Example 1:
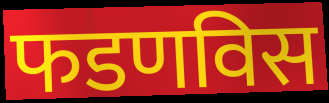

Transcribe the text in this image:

फडणविस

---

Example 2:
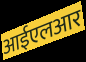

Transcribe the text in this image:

आईएलआर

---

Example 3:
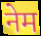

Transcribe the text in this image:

नेम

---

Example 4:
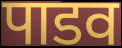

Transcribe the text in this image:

पाडव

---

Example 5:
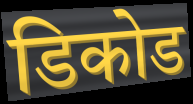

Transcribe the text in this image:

डिकोड